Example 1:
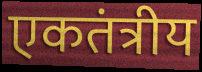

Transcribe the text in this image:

एकतंत्रीय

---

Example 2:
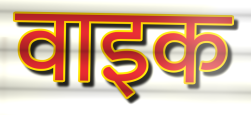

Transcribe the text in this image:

वाइक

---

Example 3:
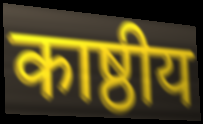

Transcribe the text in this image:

काष्ठीय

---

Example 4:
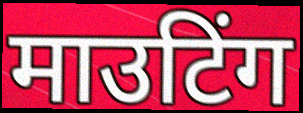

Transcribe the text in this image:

माउटिंग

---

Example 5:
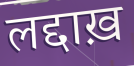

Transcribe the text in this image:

लद्दाख़